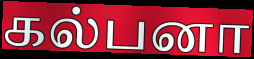
கல்பனா